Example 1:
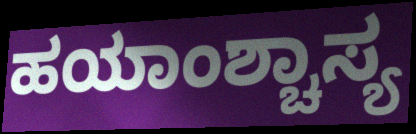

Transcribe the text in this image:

ಹಯಾಂಶ್ಚಾಸ್ಯ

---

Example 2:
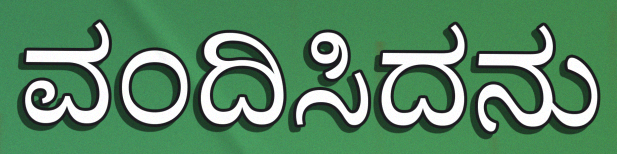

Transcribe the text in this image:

ವಂದಿಸಿದನು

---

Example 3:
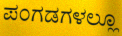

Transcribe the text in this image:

ಪಂಗಡಗಳಲ್ಲೂ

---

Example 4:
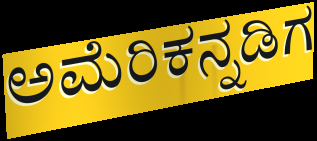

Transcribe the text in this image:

ಅಮೆರಿಕನ್ನಡಿಗ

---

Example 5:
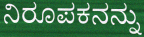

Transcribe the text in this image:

ನಿರೂಪಕನನ್ನು